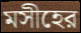
মসীহের